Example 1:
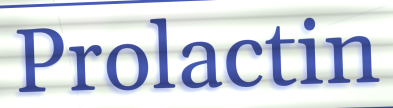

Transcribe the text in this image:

Prolactin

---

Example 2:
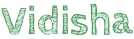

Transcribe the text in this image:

Vidisha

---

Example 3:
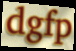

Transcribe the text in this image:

dgfp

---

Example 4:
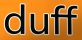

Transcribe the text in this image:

duff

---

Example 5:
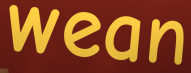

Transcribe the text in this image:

wean